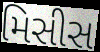
મિસીસ